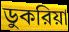
ডুকরিয়া